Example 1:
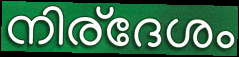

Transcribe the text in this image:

നിര്ദേശം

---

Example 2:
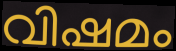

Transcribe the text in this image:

വിഷമം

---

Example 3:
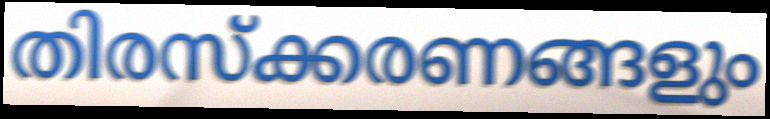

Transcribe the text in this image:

തിരസ്ക്കരണങ്ങളും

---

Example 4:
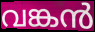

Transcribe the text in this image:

വങ്കൻ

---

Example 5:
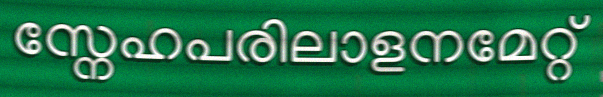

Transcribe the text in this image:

സ്നേഹപരിലാളനമേറ്റ്